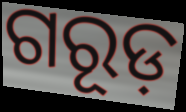
ଗରୂଡ଼